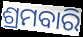
ଶ୍ରମବାରି